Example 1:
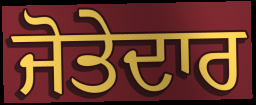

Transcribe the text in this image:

ਜੋਤੇਦਾਰ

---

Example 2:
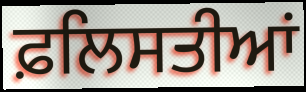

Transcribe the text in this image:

ਫ਼ਲਿਸਤੀਆਂ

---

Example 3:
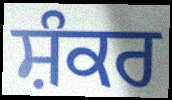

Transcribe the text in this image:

ਸ਼ੰਕਰ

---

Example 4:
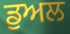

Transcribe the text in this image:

ਡੁਅਲ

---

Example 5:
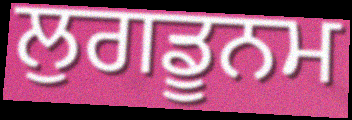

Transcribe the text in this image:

ਲੁਗਡੂਨਮ